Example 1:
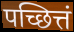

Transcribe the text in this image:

पच्छित्तं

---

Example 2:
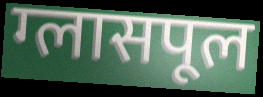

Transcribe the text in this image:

ग्लासपूल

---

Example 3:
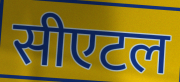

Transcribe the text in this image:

सीएटल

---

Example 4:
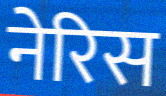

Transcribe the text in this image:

नेरिस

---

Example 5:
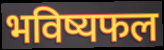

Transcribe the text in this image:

भविष्यफल